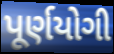
પૂર્ણયોગી